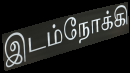
இடம்நோக்கி